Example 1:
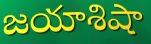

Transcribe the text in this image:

జయాశిషా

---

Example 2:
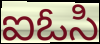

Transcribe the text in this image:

ఐఓసి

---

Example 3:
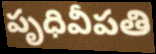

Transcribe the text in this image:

పృధివీపతి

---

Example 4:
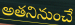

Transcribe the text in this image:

అతనినుంచే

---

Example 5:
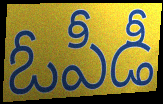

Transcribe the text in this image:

ఓపీడీ